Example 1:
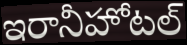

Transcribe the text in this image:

ఇరానీహోటల్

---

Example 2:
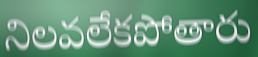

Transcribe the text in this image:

నిలవలేకపోతారు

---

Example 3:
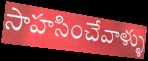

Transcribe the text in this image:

సాహసించేవాళ్ళు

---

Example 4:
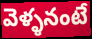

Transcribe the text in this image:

వెళ్ళనంటే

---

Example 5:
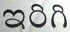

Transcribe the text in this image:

ఇరిగి